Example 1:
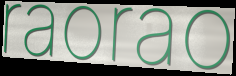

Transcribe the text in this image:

raorao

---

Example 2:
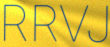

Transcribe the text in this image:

RRVJ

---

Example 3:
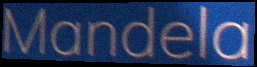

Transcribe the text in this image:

Mandela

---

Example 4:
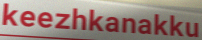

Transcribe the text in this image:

keezhkanakku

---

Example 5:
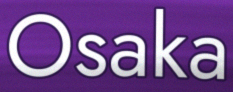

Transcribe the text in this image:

Osaka